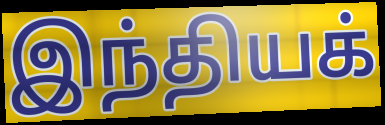
இந்தியக்